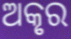
ଅକୃର